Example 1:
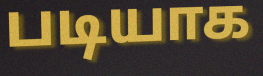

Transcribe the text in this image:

படியாக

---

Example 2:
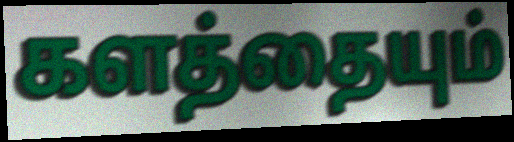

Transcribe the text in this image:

களத்தையும்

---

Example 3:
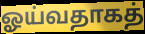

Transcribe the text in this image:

ஓய்வதாகத்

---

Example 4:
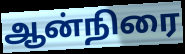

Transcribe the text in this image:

ஆன்நிரை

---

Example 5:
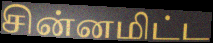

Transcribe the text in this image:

சின்னமிட்ட